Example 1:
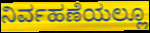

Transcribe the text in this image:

ನಿರ್ವಹಣೆಯಲ್ಲೂ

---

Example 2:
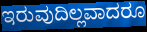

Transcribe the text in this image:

ಇರುವುದಿಲ್ಲವಾದರೂ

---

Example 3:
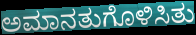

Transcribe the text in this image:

ಅಮಾನತುಗೊಳಿಸಿತು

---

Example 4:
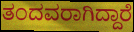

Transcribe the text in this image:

ತಂದವರಾಗಿದ್ದಾರೆ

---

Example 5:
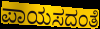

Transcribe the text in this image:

ಪಾಯಸದಂತೆ